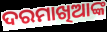
ଦରମାଖିଆଙ୍କ